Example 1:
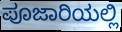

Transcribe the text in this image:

ಪೂಜಾರಿಯಲ್ಲಿ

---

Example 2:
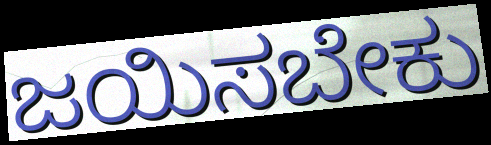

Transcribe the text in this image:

ಜಯಿಸಬೇಕು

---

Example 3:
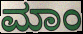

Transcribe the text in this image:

ಮಾಂ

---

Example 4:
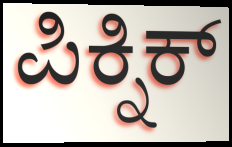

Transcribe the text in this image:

ಪಿಕ್ನಿಕ್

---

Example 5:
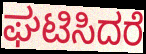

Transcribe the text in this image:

ಘಟಿಸಿದರೆ